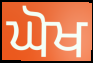
ਘੋਖ